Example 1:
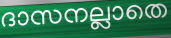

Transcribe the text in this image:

ദാസനല്ലാതെ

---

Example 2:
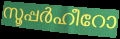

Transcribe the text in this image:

സൂപ്പർഹീറോ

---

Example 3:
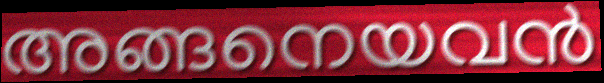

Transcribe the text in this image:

അങ്ങനെയവൻ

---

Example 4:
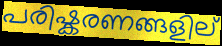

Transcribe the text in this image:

പരിഷ്കരണങ്ങളില്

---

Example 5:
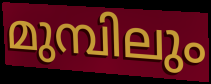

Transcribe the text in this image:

മുമ്പിലും